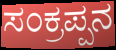
ಸಂಕ್ರಪ್ಪನ